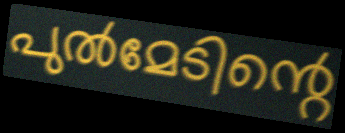
പുൽമേടിന്റെ